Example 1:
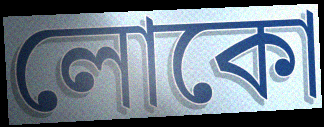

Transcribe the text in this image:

লোকো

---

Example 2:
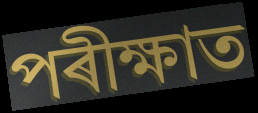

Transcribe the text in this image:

পৰীক্ষাত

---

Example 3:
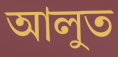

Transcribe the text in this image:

আলুত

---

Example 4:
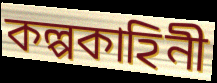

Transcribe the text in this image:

কল্পকাহিনী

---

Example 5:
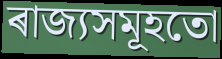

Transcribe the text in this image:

ৰাজ্যসমূহতো